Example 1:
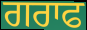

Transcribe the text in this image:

ਗਰਾਫ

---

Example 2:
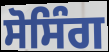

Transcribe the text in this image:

ਸੋਸਿੰਗ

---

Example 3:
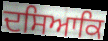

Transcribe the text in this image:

ਦਸਿਆਕਿ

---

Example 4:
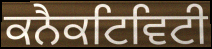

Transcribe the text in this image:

ਕਨੈਕਟਿਵਿਟੀ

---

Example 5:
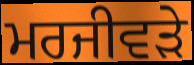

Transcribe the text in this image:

ਮਰਜੀਵੜੇ